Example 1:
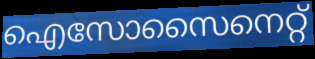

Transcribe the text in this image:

ഐസോസൈനെറ്റ്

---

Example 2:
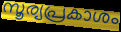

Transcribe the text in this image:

സൂര്യപ്രകാശം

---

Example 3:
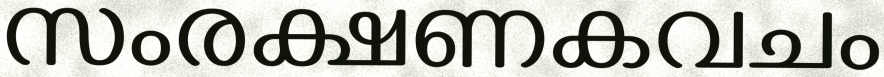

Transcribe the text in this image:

സംരക്ഷണകവചം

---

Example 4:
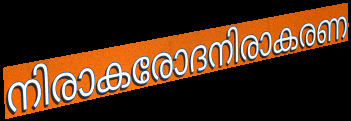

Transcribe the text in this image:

നിരാകരോദനിരാകരണ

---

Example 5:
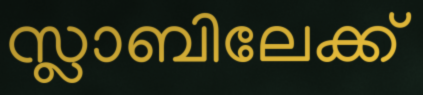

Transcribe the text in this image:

സ്ലാബിലേക്ക്